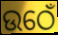
ଉଠେଁ